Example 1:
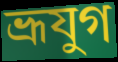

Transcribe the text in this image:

ভ্রূযুগ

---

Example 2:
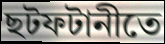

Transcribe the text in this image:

ছটফটানীতে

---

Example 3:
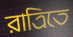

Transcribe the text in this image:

রাত্রিতে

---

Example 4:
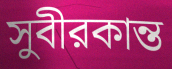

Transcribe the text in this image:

সুবীরকান্ত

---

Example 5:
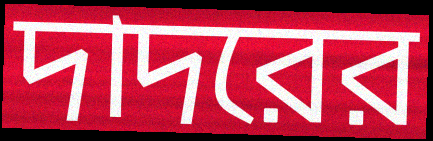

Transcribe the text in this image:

দাদরের